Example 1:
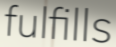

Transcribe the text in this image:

fulfills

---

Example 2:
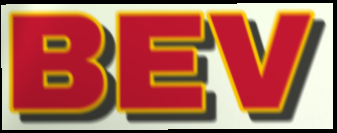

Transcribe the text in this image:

BEV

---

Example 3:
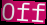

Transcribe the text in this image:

Off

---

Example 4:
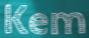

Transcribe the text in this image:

Kem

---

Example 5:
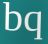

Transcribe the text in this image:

bq